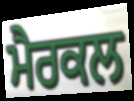
ਮੈਰਕਲ